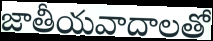
జాతీయవాదాలతో